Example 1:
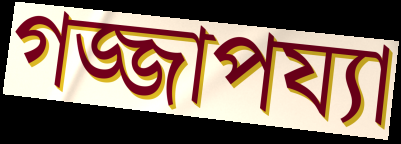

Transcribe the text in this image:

গজ্জাপয্যা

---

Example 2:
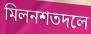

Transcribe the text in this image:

মিলনশতদলে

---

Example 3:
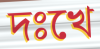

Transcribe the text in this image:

দঃখে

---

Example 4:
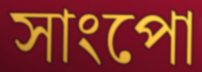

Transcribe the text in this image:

সাংপো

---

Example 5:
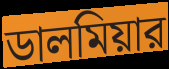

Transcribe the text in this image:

ডালমিয়ার